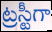
ట్రస్టీగా